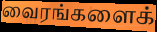
வைரங்களைக்